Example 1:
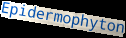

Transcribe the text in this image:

Epidermophyton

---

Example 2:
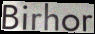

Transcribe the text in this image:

Birhor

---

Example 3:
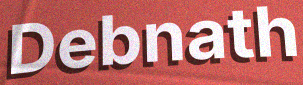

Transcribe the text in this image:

Debnath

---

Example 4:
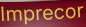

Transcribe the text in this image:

Imprecor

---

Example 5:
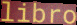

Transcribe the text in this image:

libro